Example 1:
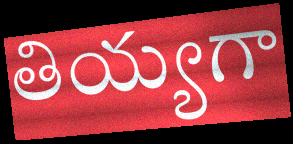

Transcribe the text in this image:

తియ్యగా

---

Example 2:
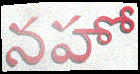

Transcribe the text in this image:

నహో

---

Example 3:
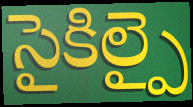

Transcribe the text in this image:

సైకిల్పై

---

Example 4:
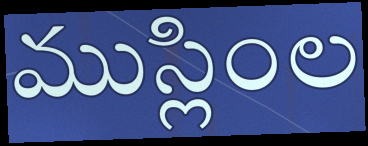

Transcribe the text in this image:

ముస్లింల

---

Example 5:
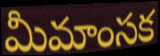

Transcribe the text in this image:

మీమాంసక